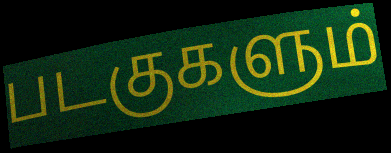
படகுகளும்